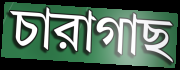
চারাগাছ